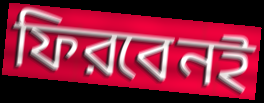
ফিরবেনই